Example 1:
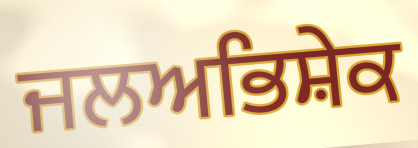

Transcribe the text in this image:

ਜਲਅਭਿਸ਼ੇਕ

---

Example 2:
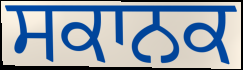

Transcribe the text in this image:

ਸਕਾਨਕ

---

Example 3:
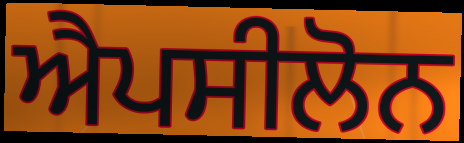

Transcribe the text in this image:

ਐਪਸੀਲੋਨ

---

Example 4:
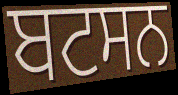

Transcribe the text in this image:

ਬਟਸਨ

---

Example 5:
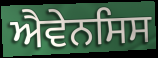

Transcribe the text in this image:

ਐਵੇਨਸਿਸ